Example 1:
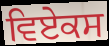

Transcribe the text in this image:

ਵਿਏਕਸ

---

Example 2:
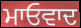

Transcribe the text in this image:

ਮਾਓਵਾਦ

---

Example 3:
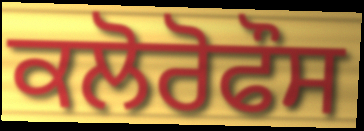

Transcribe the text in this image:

ਕਲੋਰੋਫੌਸ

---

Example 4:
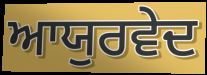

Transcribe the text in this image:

ਆਯੁਰਵੇਦ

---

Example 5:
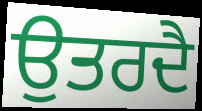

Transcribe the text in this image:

ਉਤਰਦੈ